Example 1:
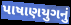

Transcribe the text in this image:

પાષાણયુગનું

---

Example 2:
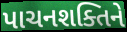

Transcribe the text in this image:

પાચનશક્તિને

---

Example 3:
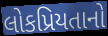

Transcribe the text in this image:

લોકપ્રિયતાનો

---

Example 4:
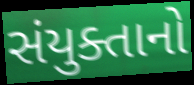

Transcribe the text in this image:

સંયુક્તાનો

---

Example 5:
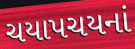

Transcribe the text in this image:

ચયાપચયનાં